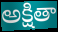
అక్షితా